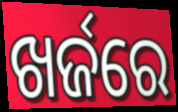
ଖର୍ଜରେ